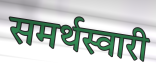
समर्थस्वारी